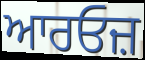
ਆਰਓਜ਼